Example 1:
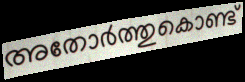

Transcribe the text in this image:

അതോർത്തുകൊണ്ട്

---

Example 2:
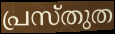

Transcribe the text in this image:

പ്രസ്തുത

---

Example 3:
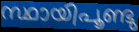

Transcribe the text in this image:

സ്ഥായിപൂണ്ടു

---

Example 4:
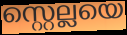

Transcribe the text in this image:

സ്റ്റെല്ലയെ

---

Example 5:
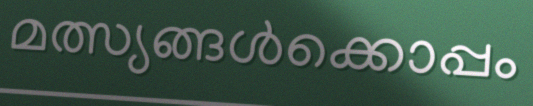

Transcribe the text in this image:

മത്സ്യങ്ങൾക്കൊപ്പം